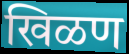
खिळण